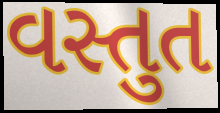
વસ્તુત